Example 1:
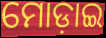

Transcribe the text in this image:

ମୋଡ଼ାଇ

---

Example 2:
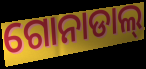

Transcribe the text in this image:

ଗୋନାଡାଲ୍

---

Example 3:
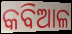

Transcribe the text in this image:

କବିଆଳ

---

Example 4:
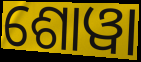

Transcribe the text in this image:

ଶୋୱା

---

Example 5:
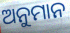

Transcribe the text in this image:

ଅନୁମାନ